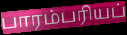
பாரம்பரியப்